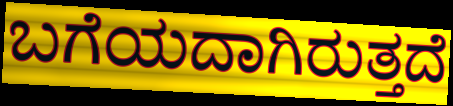
ಬಗೆಯದಾಗಿರುತ್ತದೆ